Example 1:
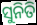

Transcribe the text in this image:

ସୁନିତି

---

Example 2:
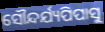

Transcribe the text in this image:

ସୌନ୍ଦର୍ଯ୍ୟପିପାସୁ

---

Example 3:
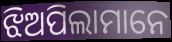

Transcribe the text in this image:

ଝିଅପିଲାମାନେ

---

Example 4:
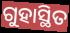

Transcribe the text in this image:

ଗୁହାସ୍ଥିତ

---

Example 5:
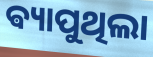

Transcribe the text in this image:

ଵ୍ୟାପୁଥିଲା